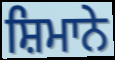
ਸ਼ਿਮਾਨੇ